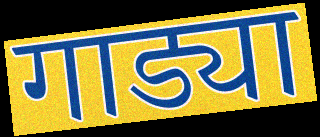
गाड्या